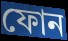
ফোন